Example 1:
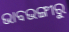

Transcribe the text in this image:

ଭାବଭଙ୍ଗୀରୁ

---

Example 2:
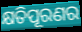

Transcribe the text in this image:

କ୍ଷତିପୂରଣର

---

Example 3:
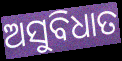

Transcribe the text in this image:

ଅସୁବିଧାତ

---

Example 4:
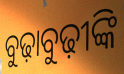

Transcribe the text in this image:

ବୁଢ଼ାବୁଢ଼ୀଙ୍କି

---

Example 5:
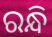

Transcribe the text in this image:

ରନ୍ଧି